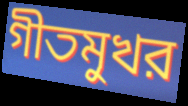
গীতমুখর